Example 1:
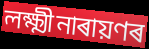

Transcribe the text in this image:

লক্ষ্মীনাৰায়ণৰ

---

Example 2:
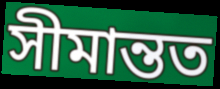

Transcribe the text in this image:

সীমান্তত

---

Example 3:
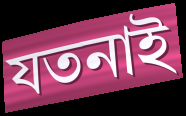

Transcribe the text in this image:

যতনাই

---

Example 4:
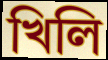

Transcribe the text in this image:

খিলি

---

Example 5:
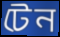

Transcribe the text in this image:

টেন